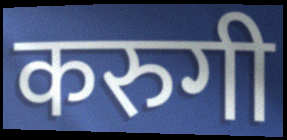
करुगी